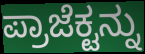
ಪ್ರಾಜೆಕ್ಟನ್ನು